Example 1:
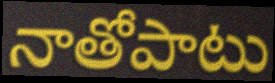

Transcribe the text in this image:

నాతోపాటు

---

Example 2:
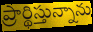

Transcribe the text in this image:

ప్రార్థిస్తున్నాను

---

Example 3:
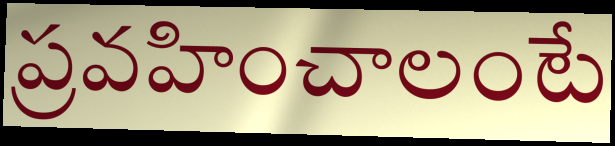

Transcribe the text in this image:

ప్రవహించాలంటే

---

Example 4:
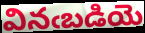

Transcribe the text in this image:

వినఁబడియె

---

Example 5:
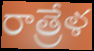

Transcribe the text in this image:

రాత్రేళ